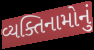
વ્યક્તિનામોનું